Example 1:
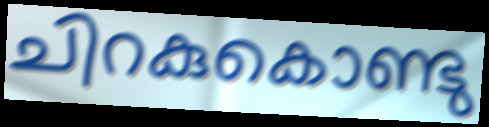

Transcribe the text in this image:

ചിറകുകൊണ്ടു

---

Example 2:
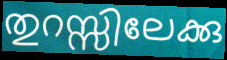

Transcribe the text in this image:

തുറസ്സിലേക്കു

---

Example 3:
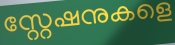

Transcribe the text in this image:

സ്റ്റേഷനുകളെ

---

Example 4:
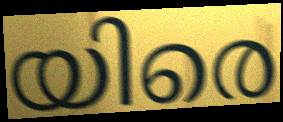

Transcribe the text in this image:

യിരെ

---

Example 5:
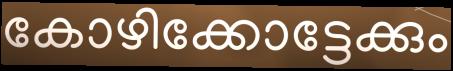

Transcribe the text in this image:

കോഴിക്കോട്ടേക്കും